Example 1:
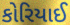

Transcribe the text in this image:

કોરિયાઈ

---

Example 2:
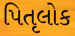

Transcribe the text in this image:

પિતૃલોક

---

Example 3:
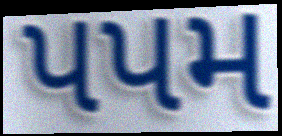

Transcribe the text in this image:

પપમ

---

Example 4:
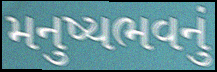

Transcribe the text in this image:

મનુષ્યભવનું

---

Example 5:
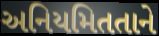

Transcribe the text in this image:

અનિયમિતતાને